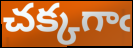
చక్కగాఁ